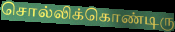
சொல்லிக்கொண்டிரு